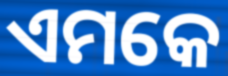
ଏମକେ